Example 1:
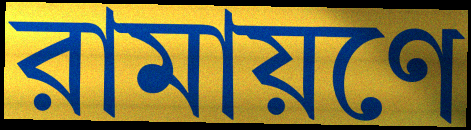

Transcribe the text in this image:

রামায়ণে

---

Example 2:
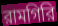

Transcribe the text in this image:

রামগিরি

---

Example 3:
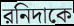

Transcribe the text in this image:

রনিদাকে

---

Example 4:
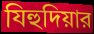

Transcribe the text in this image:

যিহুদিয়ার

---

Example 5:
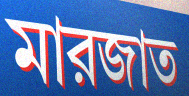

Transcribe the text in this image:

মারজাত